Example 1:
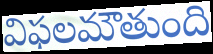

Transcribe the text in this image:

విఫలమౌతుంది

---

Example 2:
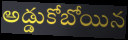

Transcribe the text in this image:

అడ్డుకోబోయిన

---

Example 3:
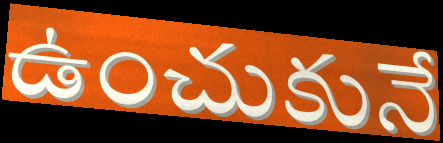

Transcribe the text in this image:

ఉంచుకునే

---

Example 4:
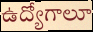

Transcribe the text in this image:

ఉద్యోగాలూ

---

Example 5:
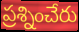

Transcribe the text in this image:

ప్రశ్నించేరు